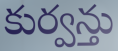
కుర్వన్తు